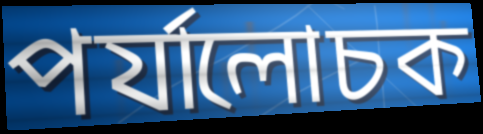
পর্যালোচক